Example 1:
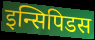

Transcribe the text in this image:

इन्सिपिडस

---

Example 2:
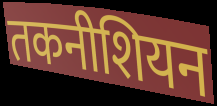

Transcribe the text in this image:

तकनीशियन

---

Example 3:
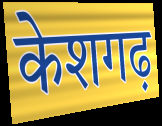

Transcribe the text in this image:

केशगढ़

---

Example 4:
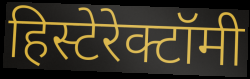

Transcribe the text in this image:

हिस्टेरेक्टॉमी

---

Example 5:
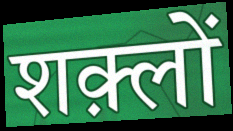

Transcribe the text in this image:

शक़्लों